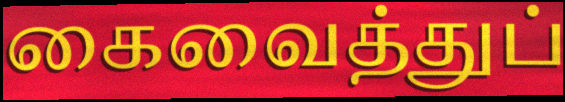
கைவைத்துப்